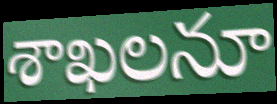
శాఖలనూ